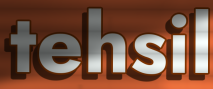
tehsil